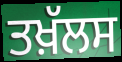
ਤਖ਼ੱਲਸ